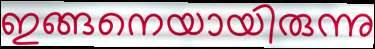
ഇങ്ങനെയായിരുന്നു